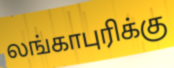
லங்காபுரிக்கு